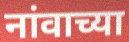
नांवाच्या